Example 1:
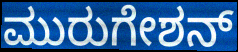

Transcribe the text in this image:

ಮುರುಗೇಶನ್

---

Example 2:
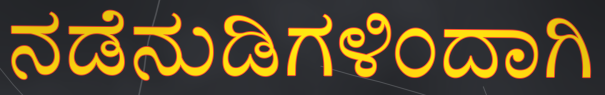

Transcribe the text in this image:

ನಡೆನುಡಿಗಳಿಂದಾಗಿ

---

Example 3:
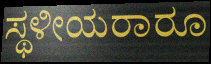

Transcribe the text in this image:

ಸ್ಥಳೀಯರಾರೂ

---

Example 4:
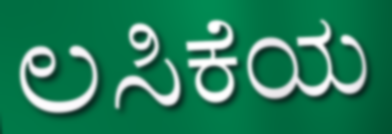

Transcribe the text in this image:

ಲಸಿಕೆಯ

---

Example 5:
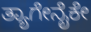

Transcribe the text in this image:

ತ್ಯಾಗೇನೈಕೇ